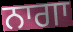
ਨਾਗਾ